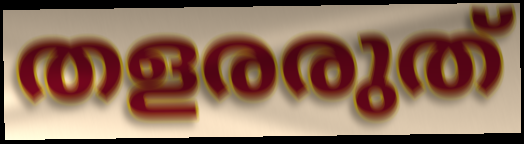
തളരരുത്